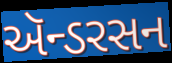
ઍન્ડરસન